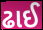
ઢાઈ